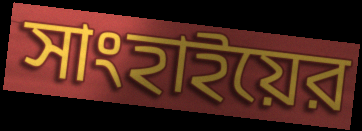
সাংহাইয়ের